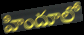
హిందూలో